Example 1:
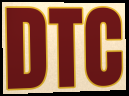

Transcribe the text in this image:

DTC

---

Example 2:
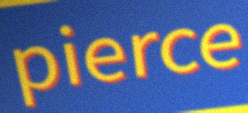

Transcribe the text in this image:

pierce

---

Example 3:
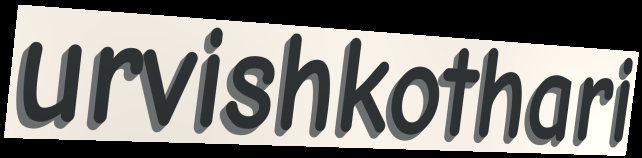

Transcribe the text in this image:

urvishkothari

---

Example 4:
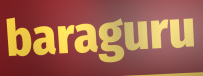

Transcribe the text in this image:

baraguru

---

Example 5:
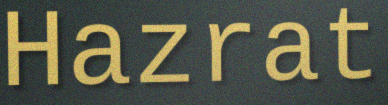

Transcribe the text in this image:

Hazrat